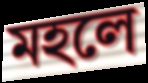
মহলে